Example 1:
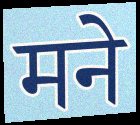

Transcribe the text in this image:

मने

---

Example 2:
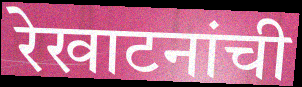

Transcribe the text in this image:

रेखाटनांची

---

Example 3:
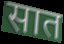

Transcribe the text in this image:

सात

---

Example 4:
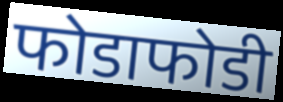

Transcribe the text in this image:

फोडाफोडी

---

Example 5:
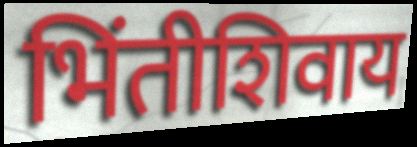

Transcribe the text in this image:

भिंतीशिवाय